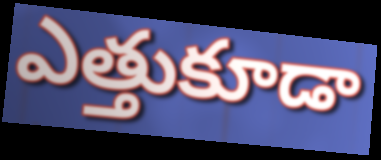
ఎత్తుకూడా